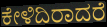
ಕೇಳಿದಿರಾದರೆ